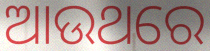
ଆଉଥରେ